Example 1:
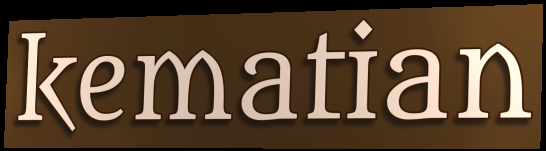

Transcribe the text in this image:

kematian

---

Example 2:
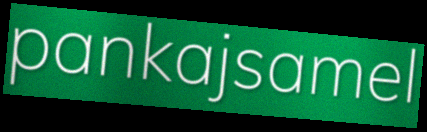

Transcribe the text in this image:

pankajsamel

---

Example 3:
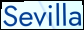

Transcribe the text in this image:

Sevilla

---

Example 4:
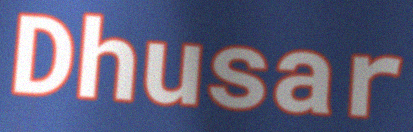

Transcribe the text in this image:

Dhusar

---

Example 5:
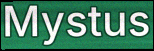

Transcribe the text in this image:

Mystus